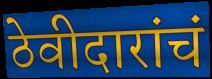
ठेवीदारांचं